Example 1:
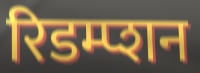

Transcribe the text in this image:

रिडम्प्शन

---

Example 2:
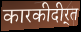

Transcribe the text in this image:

कारकीदीर्त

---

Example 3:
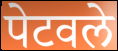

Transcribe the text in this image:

पेटवले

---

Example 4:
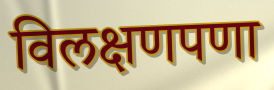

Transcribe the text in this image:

विलक्षणपणा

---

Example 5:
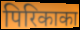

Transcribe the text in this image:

पिरिकाका